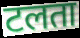
टलता